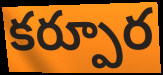
కర్పూర